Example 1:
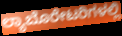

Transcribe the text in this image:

ಲ್ಯಾಬೊರೇಟರಿಗಳಲ್ಲಿ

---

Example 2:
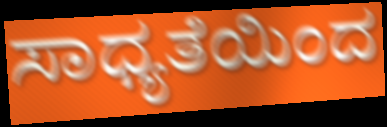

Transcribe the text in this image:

ಸಾಧ್ಯತೆಯಿಂದ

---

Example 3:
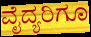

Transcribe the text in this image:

ವೈದ್ಯರಿಗೂ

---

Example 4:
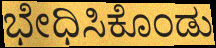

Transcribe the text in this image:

ಭೇಧಿಸಿಕೊಂಡು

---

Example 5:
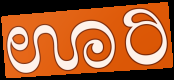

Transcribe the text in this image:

ಊರಿ